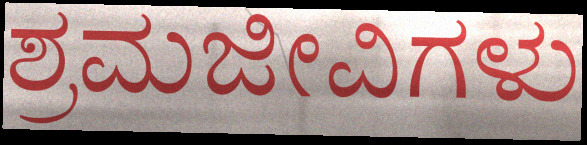
ಶ್ರಮಜೀವಿಗಳು